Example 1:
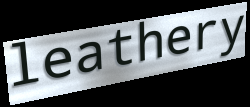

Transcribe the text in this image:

leathery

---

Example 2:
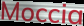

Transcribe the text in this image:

Moccia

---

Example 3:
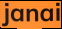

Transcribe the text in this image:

janai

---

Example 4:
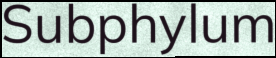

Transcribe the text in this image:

Subphylum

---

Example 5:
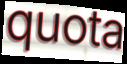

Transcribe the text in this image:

quota